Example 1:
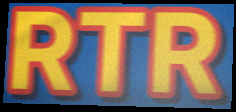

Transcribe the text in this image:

RTR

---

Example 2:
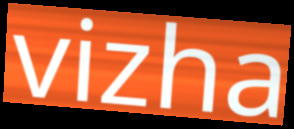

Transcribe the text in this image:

vizha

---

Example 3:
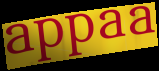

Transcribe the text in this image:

appaa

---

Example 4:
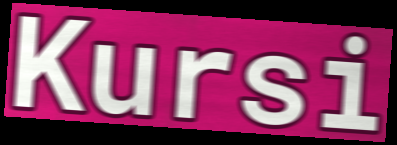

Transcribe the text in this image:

Kursi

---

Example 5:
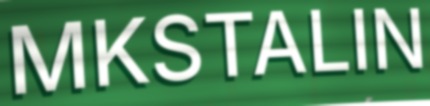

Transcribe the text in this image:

MKSTALIN